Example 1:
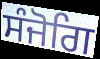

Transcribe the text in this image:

ਸੰਜੋਗਿ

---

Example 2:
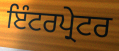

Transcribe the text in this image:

ਇੰਟਰਪ੍ਰੇਟਰ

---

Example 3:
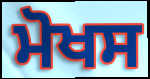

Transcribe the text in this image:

ਮੋਖਸ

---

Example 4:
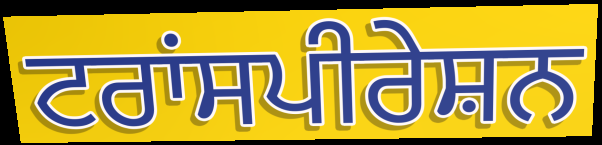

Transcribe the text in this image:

ਟਰਾਂਸਪੀਰੇਸ਼ਨ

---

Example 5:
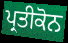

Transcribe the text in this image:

ਪ੍ਰਤੀਕੋਨ